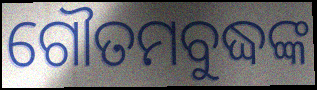
ଗୌତମବୁଦ୍ଧଙ୍କ